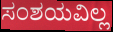
ಸಂಶಯವಿಲ್ಲ